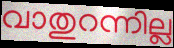
വാതുറന്നില്ല